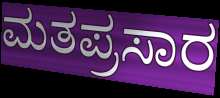
ಮತಪ್ರಸಾರ